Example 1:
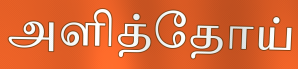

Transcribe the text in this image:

அளித்தோய்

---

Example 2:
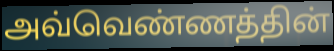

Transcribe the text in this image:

அவ்வெண்ணத்தின்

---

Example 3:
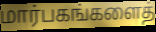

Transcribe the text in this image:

மார்பகங்களைத்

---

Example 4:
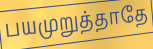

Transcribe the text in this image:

பயமுறுத்தாதே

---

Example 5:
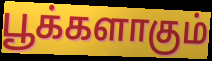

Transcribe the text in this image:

பூக்களாகும்